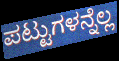
ಪಟ್ಟುಗಳನ್ನೆಲ್ಲ